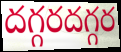
దగ్గరదగ్గర